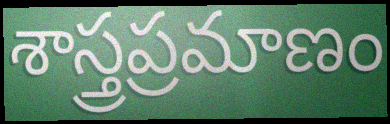
శాస్త్రప్రమాణం